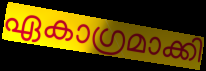
ഏകാഗ്രമാക്കി